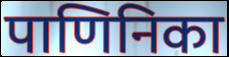
पाणिनिका